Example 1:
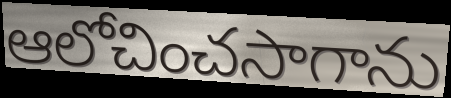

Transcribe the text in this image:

ఆలోచించసాగాను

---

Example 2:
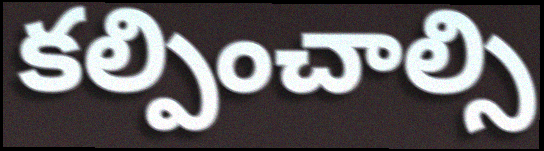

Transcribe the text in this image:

కల్పించాల్సి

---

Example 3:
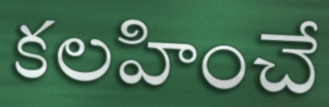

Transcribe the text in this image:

కలహించే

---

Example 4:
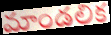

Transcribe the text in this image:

మాండలిక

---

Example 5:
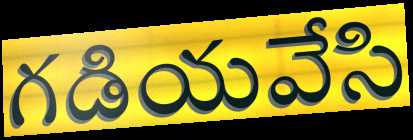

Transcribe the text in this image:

గడియవేసి